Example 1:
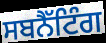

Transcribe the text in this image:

ਸਬਨੈੱਟਿੰਗ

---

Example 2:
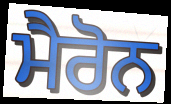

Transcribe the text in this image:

ਮੈਰੋਨ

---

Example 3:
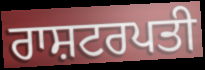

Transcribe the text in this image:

ਰਾਸ਼ਟਰਪਤੀ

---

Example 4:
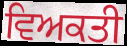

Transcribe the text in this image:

ਵਿਅਕਤੀ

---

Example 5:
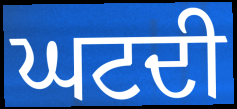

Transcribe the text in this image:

ਘਟਦੀ